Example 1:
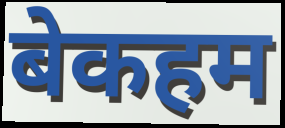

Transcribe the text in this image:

बेकहम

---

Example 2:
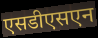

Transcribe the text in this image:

एसडीएसएन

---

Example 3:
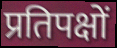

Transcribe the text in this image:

प्रतिपक्षों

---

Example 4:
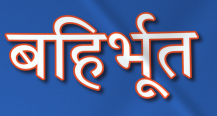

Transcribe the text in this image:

बहिर्भूत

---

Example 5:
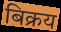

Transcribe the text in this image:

बिक्रय